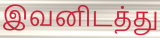
இவனிடத்து